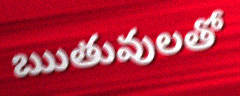
ఋతువులతో